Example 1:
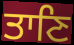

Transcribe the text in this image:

ਤਾਣਿ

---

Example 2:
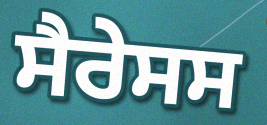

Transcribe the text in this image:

ਸੈਰੇਸਸ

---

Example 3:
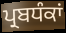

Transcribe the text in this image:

ਪ੍ਰਬਧੰਕਾਂ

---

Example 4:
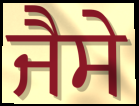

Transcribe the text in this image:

ਜੈਸੇ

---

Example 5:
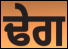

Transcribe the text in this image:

ਢੇਗ